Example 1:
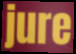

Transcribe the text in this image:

jure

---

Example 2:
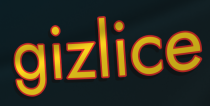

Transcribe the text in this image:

gizlice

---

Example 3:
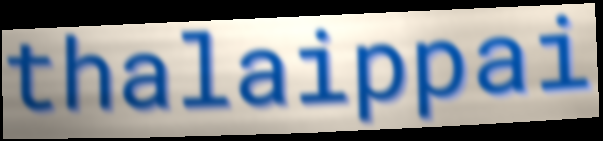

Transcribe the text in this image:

thalaippai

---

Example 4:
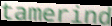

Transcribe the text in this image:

tamerind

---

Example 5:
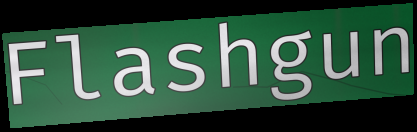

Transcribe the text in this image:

Flashgun